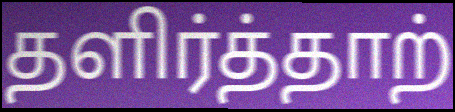
தளிர்த்தாற்